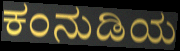
ಕಂನುಡಿಯ